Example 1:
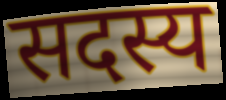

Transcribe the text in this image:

सदस्य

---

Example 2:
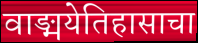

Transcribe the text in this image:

वाङ्मयेतिहासाचा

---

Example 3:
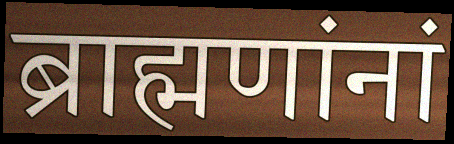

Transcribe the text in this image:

ब्राह्मणांनां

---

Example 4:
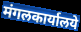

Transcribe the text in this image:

मंगलकार्यालये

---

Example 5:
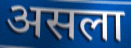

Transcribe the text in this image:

असला